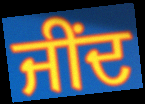
ਜੀਂਦ